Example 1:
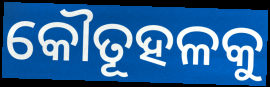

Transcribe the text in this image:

କୌତୂହଳକୁ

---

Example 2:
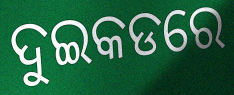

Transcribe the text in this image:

ଦୁଇକଡରେ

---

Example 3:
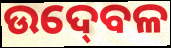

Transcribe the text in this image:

ଉଦ୍‍ବେଳ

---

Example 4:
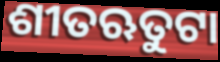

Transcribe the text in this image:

ଶୀତଋତୁଟା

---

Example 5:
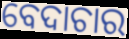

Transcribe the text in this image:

ବେଦାଚାର